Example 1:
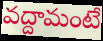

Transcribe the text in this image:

వద్దామంటే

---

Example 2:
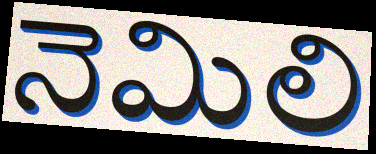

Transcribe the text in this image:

నెమిలి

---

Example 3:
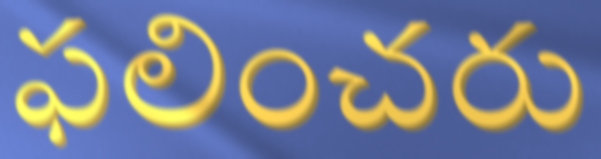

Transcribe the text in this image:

ఫలించరు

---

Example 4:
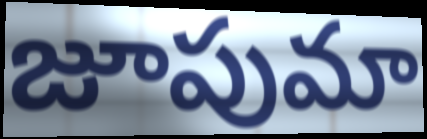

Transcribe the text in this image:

జూపుమా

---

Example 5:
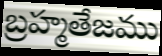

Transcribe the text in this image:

బ్రహ్మతేజము